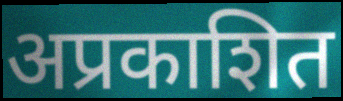
अप्रकाशित